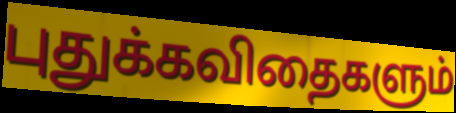
புதுக்கவிதைகளும்